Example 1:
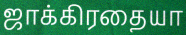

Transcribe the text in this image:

ஜாக்கிரதையா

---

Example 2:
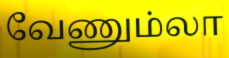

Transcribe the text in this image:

வேணும்லா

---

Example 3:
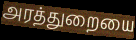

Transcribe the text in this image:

அரத்துறையை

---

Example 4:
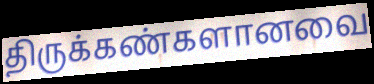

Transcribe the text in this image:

திருக்கண்களானவை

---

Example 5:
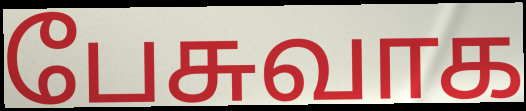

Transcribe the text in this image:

பேசுவாக